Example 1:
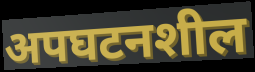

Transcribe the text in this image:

अपघटनशील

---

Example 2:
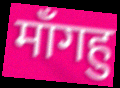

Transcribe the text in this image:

माँगहु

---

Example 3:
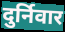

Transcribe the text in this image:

दुर्निवार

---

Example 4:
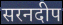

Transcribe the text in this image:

सरनदीप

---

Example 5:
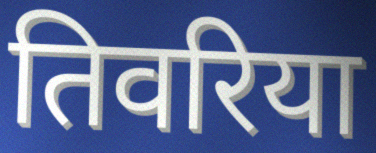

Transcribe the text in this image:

तिवरिया